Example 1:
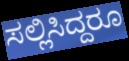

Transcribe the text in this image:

ಸಲ್ಲಿಸಿದ್ದರೂ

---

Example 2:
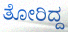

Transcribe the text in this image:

ತೋರಿದ್ದ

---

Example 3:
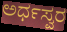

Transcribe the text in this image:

ಅರ್ಧಸ್ವರ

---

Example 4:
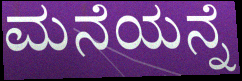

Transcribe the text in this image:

ಮನೆಯನ್ನೆ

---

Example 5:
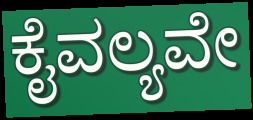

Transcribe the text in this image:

ಕೈವಲ್ಯವೇ